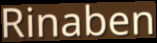
Rinaben